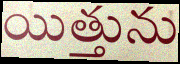
యిత్తును